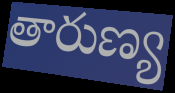
తారుణ్య